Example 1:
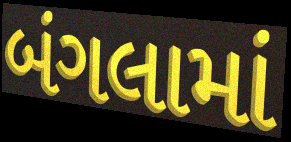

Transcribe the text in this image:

બંગલામાં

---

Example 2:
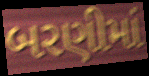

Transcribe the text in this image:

બરણીમાં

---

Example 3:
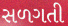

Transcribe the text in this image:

સળગતી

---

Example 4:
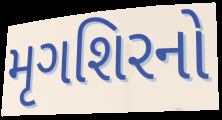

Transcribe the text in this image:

મૃગશિરનો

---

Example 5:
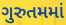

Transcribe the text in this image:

ગુરુતમમાં